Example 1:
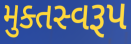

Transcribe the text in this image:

મુક્તસ્વરૂપ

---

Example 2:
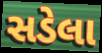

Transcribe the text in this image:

સડેલા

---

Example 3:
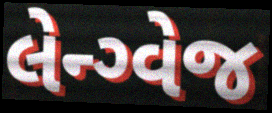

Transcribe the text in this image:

લેન્ગ્વેજ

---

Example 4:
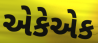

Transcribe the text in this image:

એકેએક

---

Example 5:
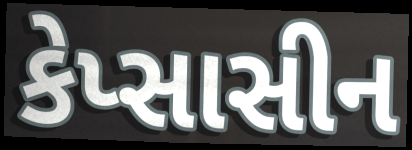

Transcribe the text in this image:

કેપ્સાસીન